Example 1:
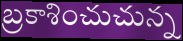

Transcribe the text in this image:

బ్రకాశించుచున్న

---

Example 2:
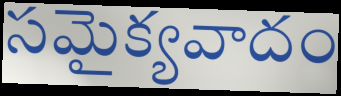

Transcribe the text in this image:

సమైక్యవాదం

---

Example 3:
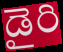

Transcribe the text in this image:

డైరి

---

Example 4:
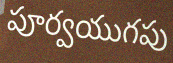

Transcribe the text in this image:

పూర్వయుగపు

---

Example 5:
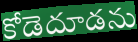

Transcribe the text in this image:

కోడెదూడను